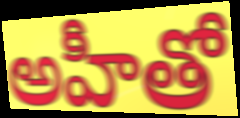
అహీతో